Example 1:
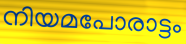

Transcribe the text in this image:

നിയമപോരാട്ടം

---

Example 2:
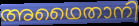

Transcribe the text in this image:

അഥൈതാനി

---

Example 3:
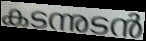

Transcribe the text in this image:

കടന്നുടൻ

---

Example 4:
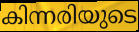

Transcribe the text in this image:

കിന്നരിയുടെ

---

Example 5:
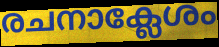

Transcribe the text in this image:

രചനാക്ലേശം